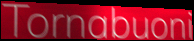
Tornabuoni